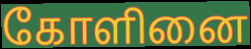
கோளினை